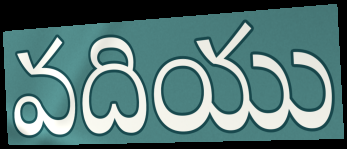
వదియు